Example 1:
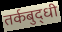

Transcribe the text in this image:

तर्कबुद्धी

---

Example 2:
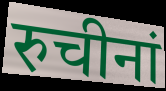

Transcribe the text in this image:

रुचीनां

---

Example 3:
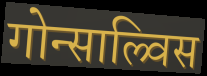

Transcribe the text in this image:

गोन्साल्विस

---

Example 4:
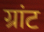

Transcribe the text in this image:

ग्रांट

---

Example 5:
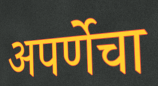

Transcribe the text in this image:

अपर्णेचा